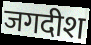
जगदीश